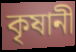
কৃষানী